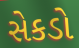
સેકડો